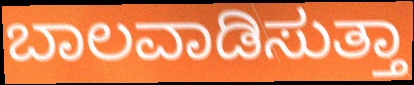
ಬಾಲವಾಡಿಸುತ್ತಾ